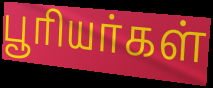
பூரியர்கள்